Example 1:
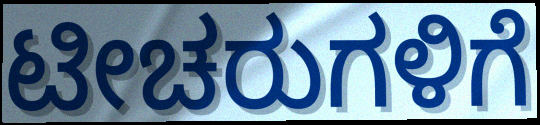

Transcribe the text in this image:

ಟೀಚರುಗಳಿಗೆ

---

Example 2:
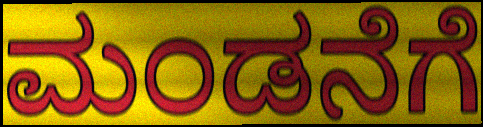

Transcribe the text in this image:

ಮಂಡನೆಗೆ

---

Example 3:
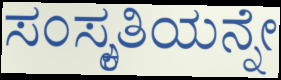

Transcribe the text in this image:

ಸಂಸ್ಕೃತಿಯನ್ನೇ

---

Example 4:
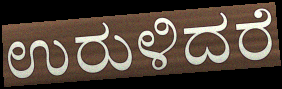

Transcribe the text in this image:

ಉರುಳಿದರೆ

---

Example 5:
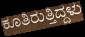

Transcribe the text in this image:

ಕೂತಿರುತ್ತಿದ್ದಳು